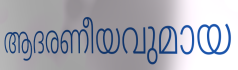
ആദരണീയവുമായ